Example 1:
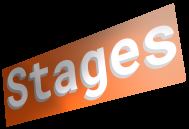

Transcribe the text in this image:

Stages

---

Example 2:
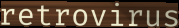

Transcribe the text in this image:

retrovirus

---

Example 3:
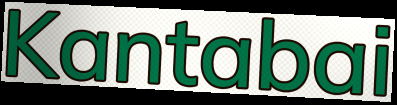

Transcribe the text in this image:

Kantabai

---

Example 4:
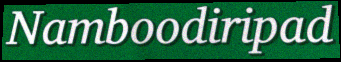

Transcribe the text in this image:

Namboodiripad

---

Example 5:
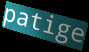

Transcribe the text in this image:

patige